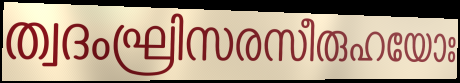
ത്വദംഘ്രിസരസീരുഹയോഃ